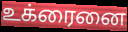
உக்ரைனை